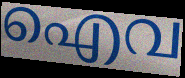
ഐവ